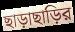
ছাড়াছাড়ির